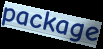
package